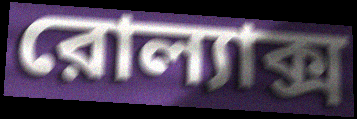
রোল্যাক্স